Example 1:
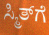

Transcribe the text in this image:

ಸ್ಮಿತ್‌ಗೆ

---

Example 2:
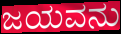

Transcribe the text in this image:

ಜಯವನು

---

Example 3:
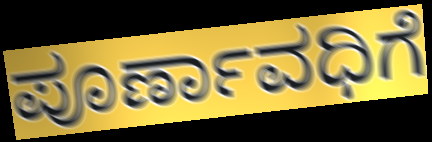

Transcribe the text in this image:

ಪೂರ್ಣಾವಧಿಗೆ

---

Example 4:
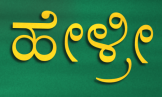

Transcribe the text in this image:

ಹೇಳ್ರೀ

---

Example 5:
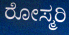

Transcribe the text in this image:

ರೋಸ್ಮರಿ